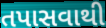
તપાસવાથી